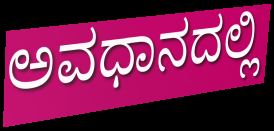
ಅವಧಾನದಲ್ಲಿ